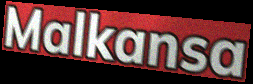
Malkansa